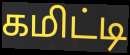
கமிட்டி